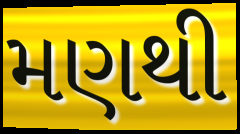
મણથી